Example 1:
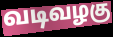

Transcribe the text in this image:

வடிவழகு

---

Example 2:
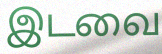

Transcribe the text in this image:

இடவை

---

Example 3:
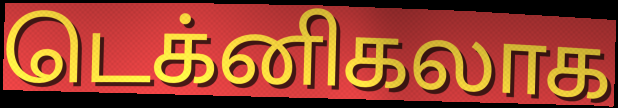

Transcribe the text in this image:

டெக்னிகலாக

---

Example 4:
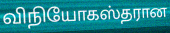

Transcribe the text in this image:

விநியோகஸ்தரான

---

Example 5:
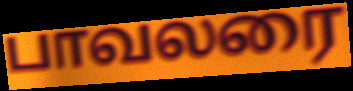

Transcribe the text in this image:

பாவலரை